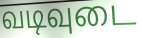
வடிவுடை